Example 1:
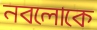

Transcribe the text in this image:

নবলোকে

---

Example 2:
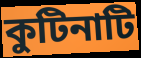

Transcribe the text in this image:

কুটিনাটি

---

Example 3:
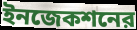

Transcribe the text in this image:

ইনজেকশনের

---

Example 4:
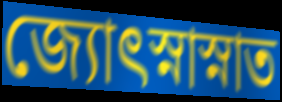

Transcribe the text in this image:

জ্যোৎস্নাস্নাত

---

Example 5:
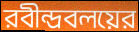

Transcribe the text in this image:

রবীন্দ্রবলয়ের